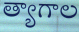
త్యాగాల